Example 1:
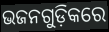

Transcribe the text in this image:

ଭଜନଗୁଡ଼ିକରେ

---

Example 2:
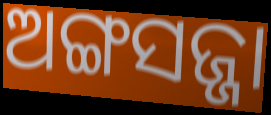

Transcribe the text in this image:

ଅଙ୍ଗସଜ୍ଜା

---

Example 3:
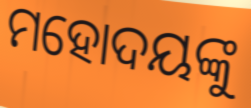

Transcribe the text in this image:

ମହୋଦୟଙ୍କୁ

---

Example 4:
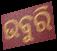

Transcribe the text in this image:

ଉବୁରି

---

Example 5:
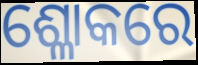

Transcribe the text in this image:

ଶ୍ଳୋକରେ